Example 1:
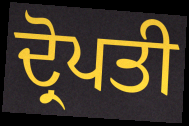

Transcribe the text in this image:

ਦ੍ਰੋਪਤੀ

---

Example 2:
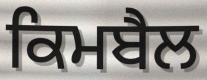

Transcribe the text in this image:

ਕਿਮਬੈਲ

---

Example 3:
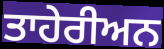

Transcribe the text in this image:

ਤਾਹੇਰੀਅਨ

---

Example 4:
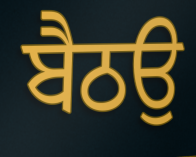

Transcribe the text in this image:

ਬੈਠਉ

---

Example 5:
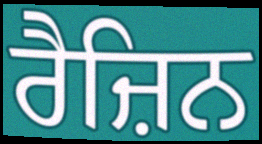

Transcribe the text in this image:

ਰੈਜ਼ਿਨ